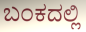
ಬಂಕದಲ್ಲಿ